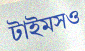
টাইমসও